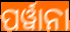
ପର୍ୱାନା